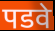
पडवे